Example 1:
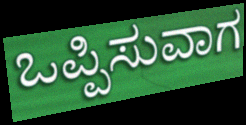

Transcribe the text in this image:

ಒಪ್ಪಿಸುವಾಗ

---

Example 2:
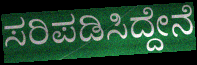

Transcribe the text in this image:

ಸರಿಪಡಿಸಿದ್ದೇನೆ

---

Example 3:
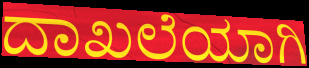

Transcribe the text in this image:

ದಾಖಲೆಯಾಗಿ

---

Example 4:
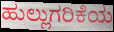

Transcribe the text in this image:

ಹುಲ್ಲುಗರಿಕೆಯ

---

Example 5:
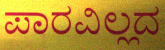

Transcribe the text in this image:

ಪಾರವಿಲ್ಲದ